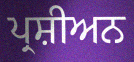
ਪ੍ਰਸ਼ੀਅਨ